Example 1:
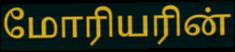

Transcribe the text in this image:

மோரியரின்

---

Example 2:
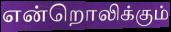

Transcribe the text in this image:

என்றொலிக்கும்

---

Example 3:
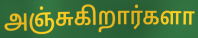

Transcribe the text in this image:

அஞ்சுகிறார்களா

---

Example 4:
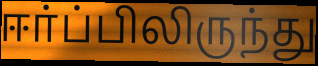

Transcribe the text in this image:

ஈர்ப்பிலிருந்து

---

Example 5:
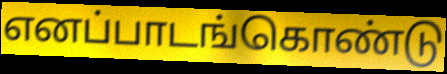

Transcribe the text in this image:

எனப்பாடங்கொண்டு